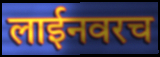
लाईनवरच